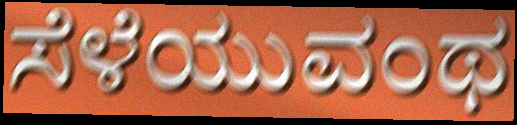
ಸೆಳೆಯುವಂಥ